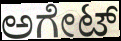
ಅಗೇಟ್